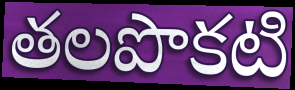
తలపొకటి